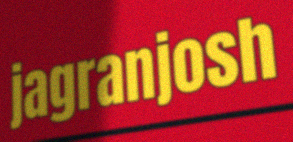
jagranjosh